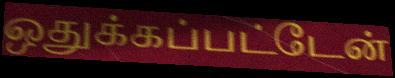
ஒதுக்கப்பட்டேன்